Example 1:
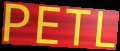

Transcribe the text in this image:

PETL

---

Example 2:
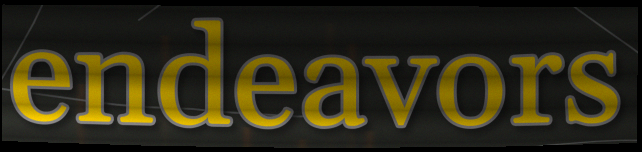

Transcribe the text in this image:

endeavors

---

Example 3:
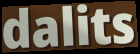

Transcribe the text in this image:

dalits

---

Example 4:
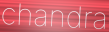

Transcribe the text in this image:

chandra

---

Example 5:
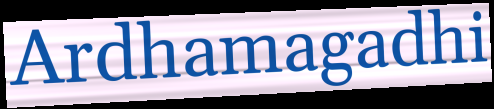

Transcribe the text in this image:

Ardhamagadhi